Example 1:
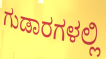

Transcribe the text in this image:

ಗುಡಾರಗಳಲ್ಲಿ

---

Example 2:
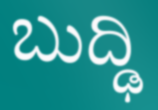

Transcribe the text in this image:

ಬುದ್ಢಿ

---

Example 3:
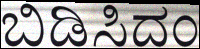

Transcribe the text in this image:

ಬಿಡಿಸಿದಂ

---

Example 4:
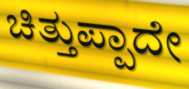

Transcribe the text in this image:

ಚಿತ್ತುಪ್ಪಾದೇ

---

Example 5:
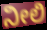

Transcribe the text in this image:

ನೀಲಿ